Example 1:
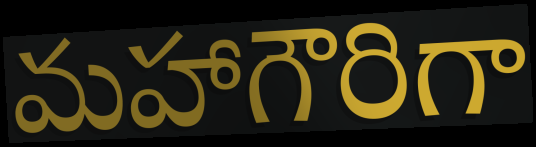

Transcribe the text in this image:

మహాగౌరిగా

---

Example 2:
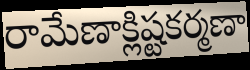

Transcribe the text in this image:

రామేణాక్లిష్టకర్మణా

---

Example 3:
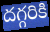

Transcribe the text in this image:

దగ్గరికి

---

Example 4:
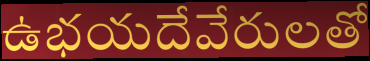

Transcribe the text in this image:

ఉభయదేవేరులతో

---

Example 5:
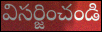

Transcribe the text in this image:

విసర్జించండి